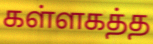
கள்ளகத்த